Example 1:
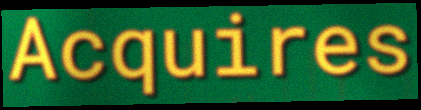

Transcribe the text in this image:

Acquires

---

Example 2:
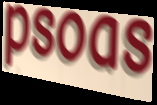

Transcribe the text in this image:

psoas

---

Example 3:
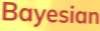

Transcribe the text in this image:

Bayesian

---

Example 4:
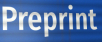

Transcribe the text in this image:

Preprint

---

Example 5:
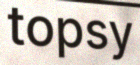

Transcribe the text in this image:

topsy